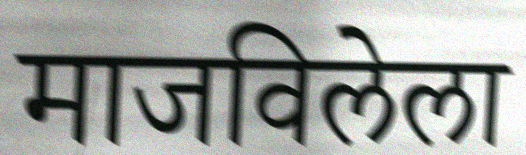
माजविलेला